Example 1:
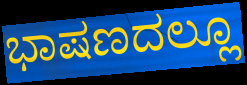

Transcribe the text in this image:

ಭಾಷಣದಲ್ಲೂ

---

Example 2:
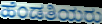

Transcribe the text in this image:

ಹೆಂಡತಿಯರು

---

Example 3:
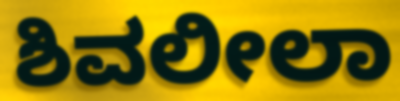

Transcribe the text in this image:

ಶಿವಲೀಲಾ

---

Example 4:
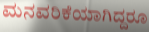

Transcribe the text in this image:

ಮನವರಿಕೆಯಾಗಿದ್ದರೂ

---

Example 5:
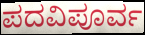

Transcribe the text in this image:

ಪದವಿಪೂರ್ವ